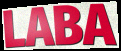
LABA